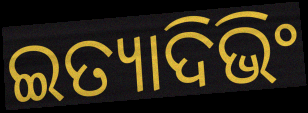
ଇତ୍ୟାଦିଭିଂ